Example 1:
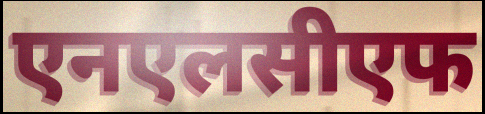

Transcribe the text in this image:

एनएलसीएफ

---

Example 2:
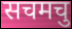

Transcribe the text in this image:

सचमचु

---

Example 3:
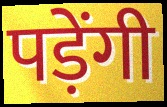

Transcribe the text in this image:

पड़ेंगी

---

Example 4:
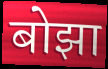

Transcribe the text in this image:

बोझा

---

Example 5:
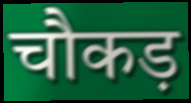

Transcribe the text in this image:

चौकड़